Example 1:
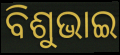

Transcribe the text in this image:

ବିଶୁଭାଇ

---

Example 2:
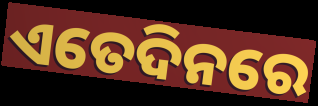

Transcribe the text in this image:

ଏତେଦିନରେ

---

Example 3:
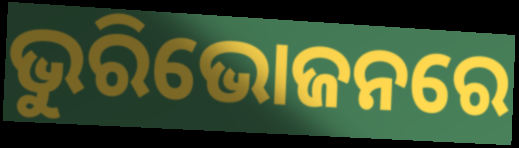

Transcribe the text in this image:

ଭୁରିଭୋଜନରେ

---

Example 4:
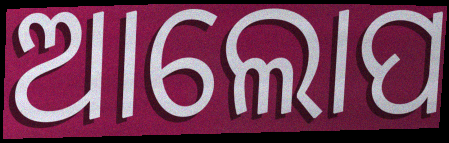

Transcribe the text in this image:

ଆଲୋପ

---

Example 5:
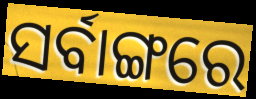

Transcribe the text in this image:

ସର୍ବାଙ୍ଗରେ